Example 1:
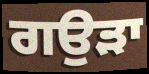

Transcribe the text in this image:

ਗਉੜਾ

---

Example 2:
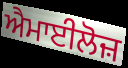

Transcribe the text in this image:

ਐਮਾਈਲੋਜ਼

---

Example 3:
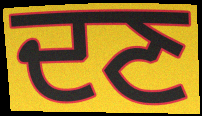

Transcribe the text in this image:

ਦਣ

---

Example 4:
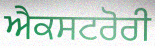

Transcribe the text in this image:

ਐਕਸਟਰੋਰੀ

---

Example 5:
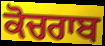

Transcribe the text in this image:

ਕੋਚਰਾਬ